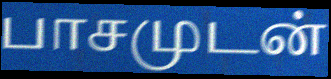
பாசமுடன்